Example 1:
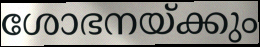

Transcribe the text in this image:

ശോഭനയ്ക്കും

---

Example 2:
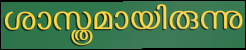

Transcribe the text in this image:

ശാസ്ത്രമായിരുന്നു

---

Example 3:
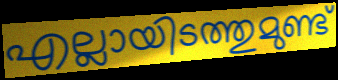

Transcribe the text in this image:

എല്ലായിടത്തുമുണ്ട്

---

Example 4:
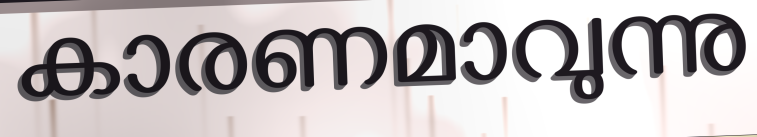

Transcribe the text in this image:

കാരണമാവുന്നു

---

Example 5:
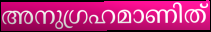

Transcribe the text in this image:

അനുഗ്രഹമാണിത്